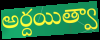
అర్దయిత్వా